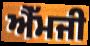
ਐੱਮਜੀ